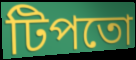
টিপতো